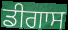
ਡੀਗਾਸ